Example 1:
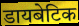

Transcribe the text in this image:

डायबेटिक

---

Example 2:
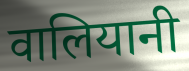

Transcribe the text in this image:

वालियानी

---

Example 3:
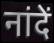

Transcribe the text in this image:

नांदें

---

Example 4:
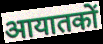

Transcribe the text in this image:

आयातकों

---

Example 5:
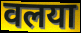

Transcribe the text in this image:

वलया